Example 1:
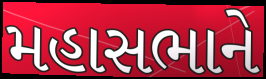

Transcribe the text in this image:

મહાસભાને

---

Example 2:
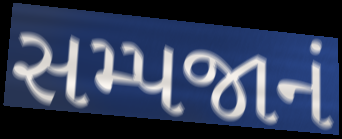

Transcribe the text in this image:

સમ્પજાનં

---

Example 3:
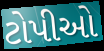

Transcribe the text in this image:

ટોપીઓ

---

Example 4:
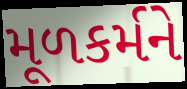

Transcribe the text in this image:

મૂળકર્મને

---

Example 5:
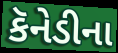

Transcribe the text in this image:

કૅનેડીના